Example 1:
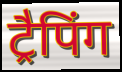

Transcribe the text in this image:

ट्रैपिंग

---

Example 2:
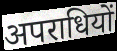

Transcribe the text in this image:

अपराधियों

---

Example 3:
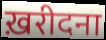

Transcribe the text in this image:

ख़रीदना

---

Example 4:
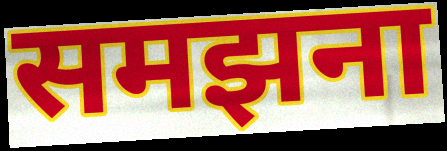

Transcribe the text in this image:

समझना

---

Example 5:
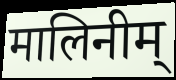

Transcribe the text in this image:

मालिनीम्